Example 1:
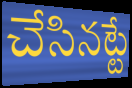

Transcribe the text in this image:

చేసినట్టే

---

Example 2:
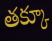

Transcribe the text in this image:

తక్కూ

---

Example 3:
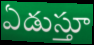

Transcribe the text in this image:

ఏడుస్తూ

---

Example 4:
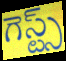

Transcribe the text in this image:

గెస్ట్స్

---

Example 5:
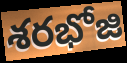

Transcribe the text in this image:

శరభోజి